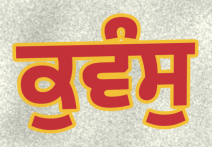
ਕੁਵੰਸੁ